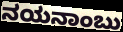
ನಯನಾಂಬು